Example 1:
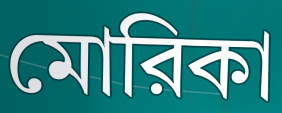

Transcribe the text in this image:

মোরিকা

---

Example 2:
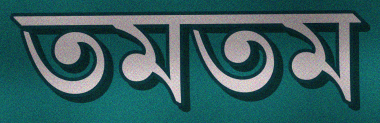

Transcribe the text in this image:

তমতম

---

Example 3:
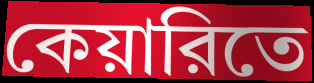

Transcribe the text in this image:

কেয়ারিতে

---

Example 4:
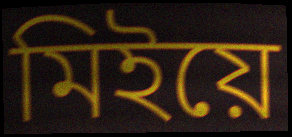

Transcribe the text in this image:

মিইয়ে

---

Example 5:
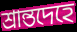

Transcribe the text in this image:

শ্রান্তদেহে